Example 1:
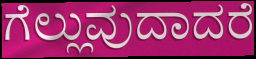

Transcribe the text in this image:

ಗೆಲ್ಲುವುದಾದರೆ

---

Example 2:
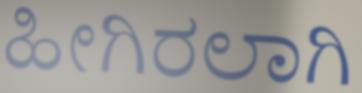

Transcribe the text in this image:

ಹೀಗಿರಲಾಗಿ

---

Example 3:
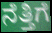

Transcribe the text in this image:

ನೆತ್ತಿಗೆ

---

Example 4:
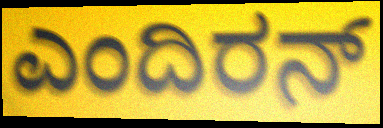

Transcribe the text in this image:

ಎಂದಿರನ್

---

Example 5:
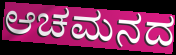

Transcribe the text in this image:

ಆಚಮನದ